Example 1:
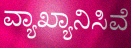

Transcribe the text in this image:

ವ್ಯಾಖ್ಯಾನಿಸಿವೆ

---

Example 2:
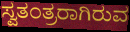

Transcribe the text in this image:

ಸ್ವತಂತ್ರರಾಗಿರುವ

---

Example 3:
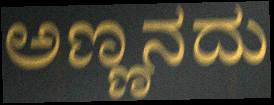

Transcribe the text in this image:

ಅಣ್ಣನದು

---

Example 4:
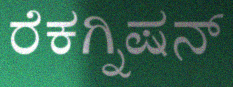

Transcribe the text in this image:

ರೆಕಗ್ನಿಷನ್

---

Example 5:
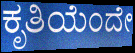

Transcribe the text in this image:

ಕೃತಿಯೆಂದೇ